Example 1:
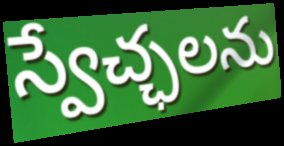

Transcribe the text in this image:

స్వేచ్ఛలను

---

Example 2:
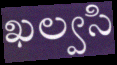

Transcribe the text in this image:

ఖల్వసి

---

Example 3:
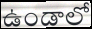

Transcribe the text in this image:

ఉండాలో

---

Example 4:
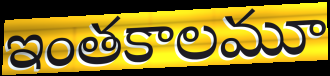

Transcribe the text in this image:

ఇంతకాలమూ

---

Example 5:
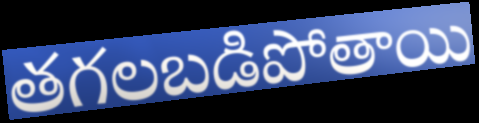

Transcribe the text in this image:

తగలబడిపోతాయి